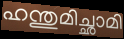
ഹന്തുമിച്ഛാമി